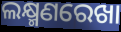
ଲକ୍ଷ୍ମଣରେଖା